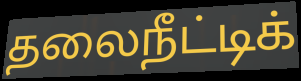
தலைநீட்டிக்